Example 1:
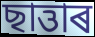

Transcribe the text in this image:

ছাত্তাৰ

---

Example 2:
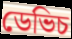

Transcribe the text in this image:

ডেভিচ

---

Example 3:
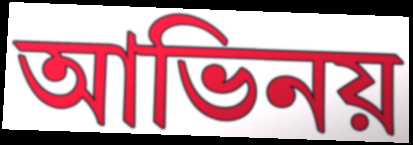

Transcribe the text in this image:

আভিনয়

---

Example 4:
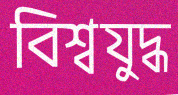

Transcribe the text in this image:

বিশ্বযুদ্ধ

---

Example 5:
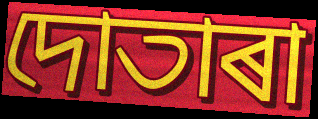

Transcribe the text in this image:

দোতাৰা